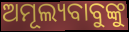
ଅମୂଲ୍ୟବାବୁଙ୍କୁ